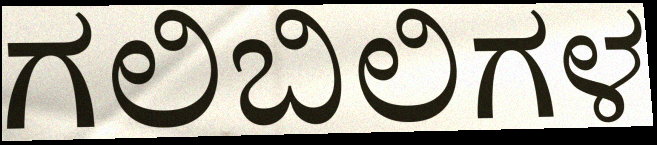
ಗಲಿಬಿಲಿಗಳ